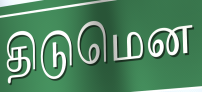
திடுமென